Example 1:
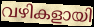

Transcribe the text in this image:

വഴികളായി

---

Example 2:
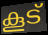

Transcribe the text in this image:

കൂട്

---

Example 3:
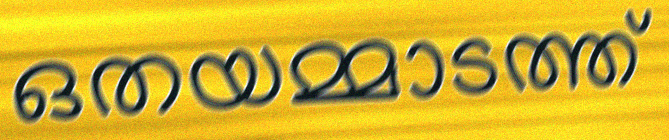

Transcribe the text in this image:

ഒതയമ്മാടത്ത്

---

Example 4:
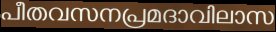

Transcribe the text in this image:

പീതവസനപ്രമദാവിലാസ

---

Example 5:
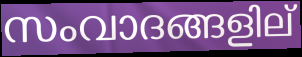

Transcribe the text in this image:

സംവാദങ്ങളില്